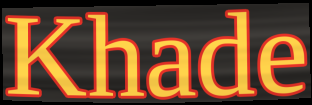
Khade